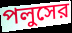
পলুসের